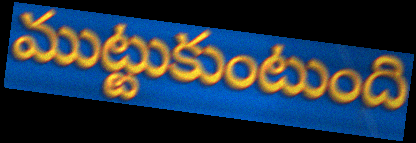
ముట్టుకుంటుంది